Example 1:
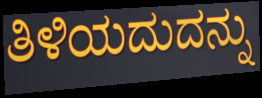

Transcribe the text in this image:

ತಿಳಿಯದುದನ್ನು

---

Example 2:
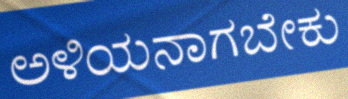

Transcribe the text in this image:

ಅಳಿಯನಾಗಬೇಕು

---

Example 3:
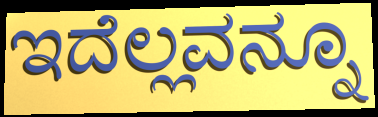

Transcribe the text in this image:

ಇದೆಲ್ಲವನ್ನೂ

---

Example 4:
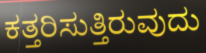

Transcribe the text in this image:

ಕತ್ತರಿಸುತ್ತಿರುವುದು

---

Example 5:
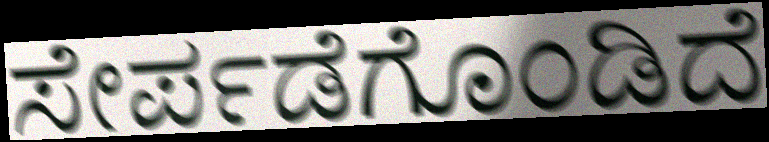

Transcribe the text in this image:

ಸೇರ್ಪಡೆಗೊಂಡಿದೆ